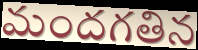
మందగతిన